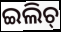
ଇଲିଚ୍